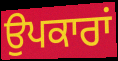
ਉਪਕਾਰਾਂ